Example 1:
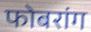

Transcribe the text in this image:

फोबरांग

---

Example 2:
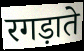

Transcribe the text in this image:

रगड़ाते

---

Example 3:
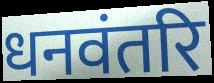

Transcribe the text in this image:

धनवंतरि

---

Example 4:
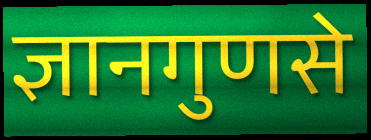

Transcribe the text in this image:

ज्ञानगुणसे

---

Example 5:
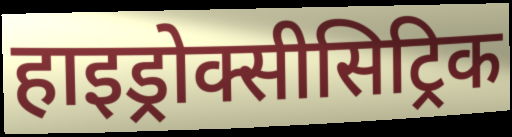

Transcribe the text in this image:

हाइड्रोक्सीसिट्रिक